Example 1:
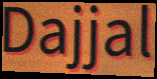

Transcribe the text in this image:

Dajjal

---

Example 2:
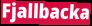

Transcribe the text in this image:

Fjallbacka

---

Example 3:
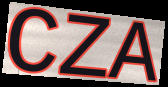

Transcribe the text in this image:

CZA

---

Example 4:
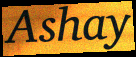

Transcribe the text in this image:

Ashay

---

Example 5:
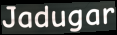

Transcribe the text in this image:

Jadugar